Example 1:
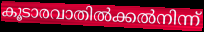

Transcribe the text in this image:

കൂടാരവാതിൽക്കൽനിന്ന്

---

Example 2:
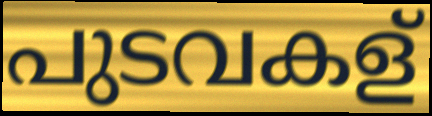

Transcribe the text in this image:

പുടവകള്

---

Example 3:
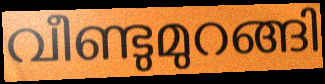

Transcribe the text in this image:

വീണ്ടുമുറങ്ങി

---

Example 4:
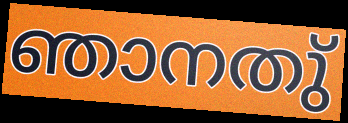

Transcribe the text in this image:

ഞാനതു്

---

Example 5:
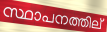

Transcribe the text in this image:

സ്ഥാപനത്തില്